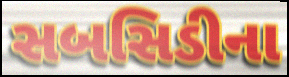
સબસિડીના